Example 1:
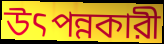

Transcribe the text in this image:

উৎপন্নকারী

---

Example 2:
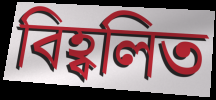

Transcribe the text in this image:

বিহ্বলিত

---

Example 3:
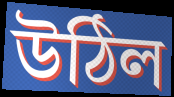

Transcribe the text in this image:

উঠিল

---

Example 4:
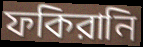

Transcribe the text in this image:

ফকিরানি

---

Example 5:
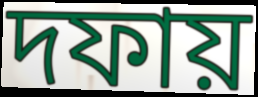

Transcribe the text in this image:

দফায়